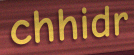
chhidr